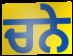
ਚਨੇ